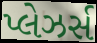
પ્લેઝર્સ